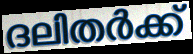
ദലിതർക്ക്